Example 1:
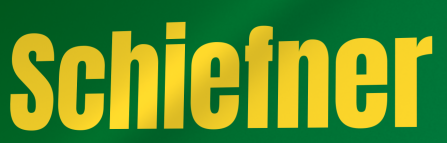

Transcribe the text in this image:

Schiefner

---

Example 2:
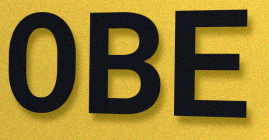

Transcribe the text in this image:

OBE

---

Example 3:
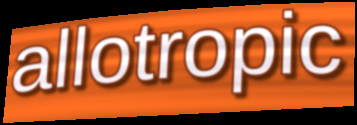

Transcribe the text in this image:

allotropic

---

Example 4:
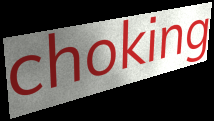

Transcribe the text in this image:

choking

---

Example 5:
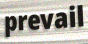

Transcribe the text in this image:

prevail